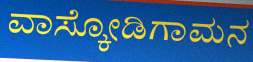
ವಾಸ್ಕೋಡಿಗಾಮನ